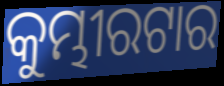
କୁମ୍ଭୀରଟାର